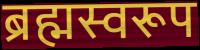
ब्रह्मस्वरूप